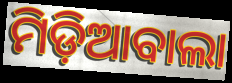
ମିଡ଼ିଆବାଲା